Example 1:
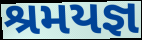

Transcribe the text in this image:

શ્રમયજ્ઞ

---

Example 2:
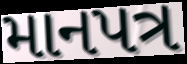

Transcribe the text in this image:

માનપત્ર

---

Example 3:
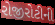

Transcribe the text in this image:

રોજીરોટીની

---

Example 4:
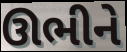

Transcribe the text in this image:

ઊભીને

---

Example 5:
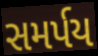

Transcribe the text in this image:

સમર્પય